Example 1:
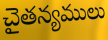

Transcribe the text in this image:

చైతన్యములు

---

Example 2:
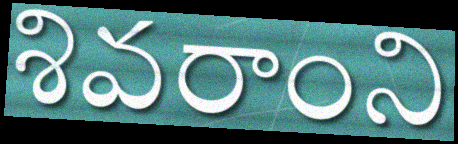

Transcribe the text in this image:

శివరాంని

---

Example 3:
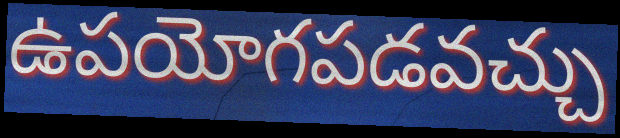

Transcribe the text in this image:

ఉపయోగపడవచ్చు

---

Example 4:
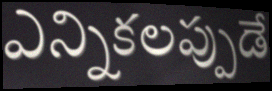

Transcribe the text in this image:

ఎన్నికలప్పుడే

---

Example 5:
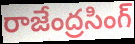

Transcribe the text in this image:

రాజేంద్రసింగ్